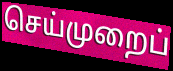
செய்முறைப்